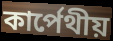
কার্পেথীয়